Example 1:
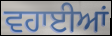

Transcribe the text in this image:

ਵਹਾਈਆਂ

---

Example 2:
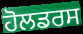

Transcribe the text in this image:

ਹੋਲਡਰਸ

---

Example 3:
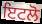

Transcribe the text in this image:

ਇਟਲੋ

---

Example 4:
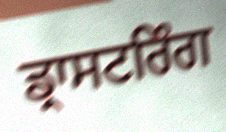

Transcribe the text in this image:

ਡ੍ਰਾਸਟਰਿੰਗ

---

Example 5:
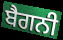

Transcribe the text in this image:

ਬੈਗਨੀ